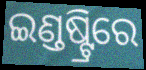
ଇଣ୍ଡଷ୍ଟ୍ରିରେ